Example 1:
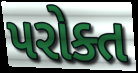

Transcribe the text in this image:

પરોક્ત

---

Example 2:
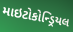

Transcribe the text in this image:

માઇટોકોન્ડ્રિયલ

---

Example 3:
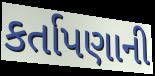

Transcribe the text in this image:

કર્તાપણાની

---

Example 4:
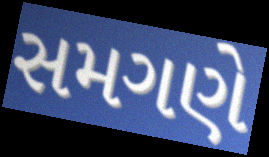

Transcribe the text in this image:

સમગણે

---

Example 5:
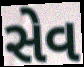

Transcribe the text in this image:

સેવ